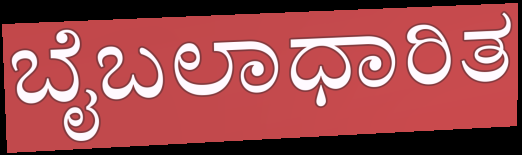
ಬೈಬಲಾಧಾರಿತ